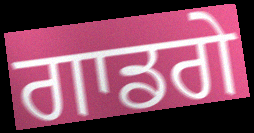
ਗਾਡਗੇ